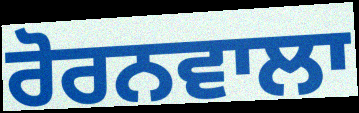
ਰੋਰਨਵਾਲਾ